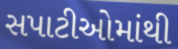
સપાટીઓમાંથી